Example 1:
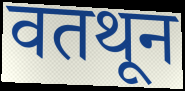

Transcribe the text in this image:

वतथून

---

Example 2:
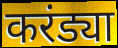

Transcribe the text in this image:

करंड्या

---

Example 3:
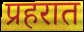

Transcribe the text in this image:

प्रहरात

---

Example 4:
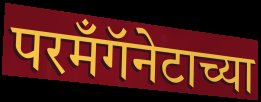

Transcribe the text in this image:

परमँगॅनेटाच्या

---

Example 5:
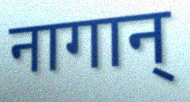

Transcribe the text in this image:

नागान्